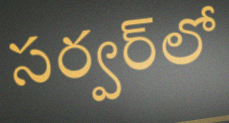
సర్వర్‌లో